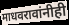
माधवरावांनीही